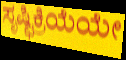
ಸೃಷ್ಟಿಕ್ರಿಯೆಯೇ